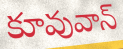
కూవువాన్